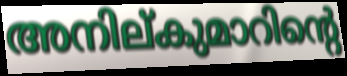
അനില്കുമാറിന്റെ